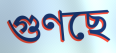
গুণছে